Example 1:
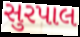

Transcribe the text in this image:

સુરપાલ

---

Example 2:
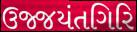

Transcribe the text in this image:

ઉજ્જયંતગિરિ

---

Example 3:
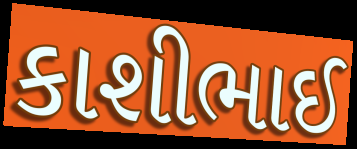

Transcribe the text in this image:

કાશીભાઈ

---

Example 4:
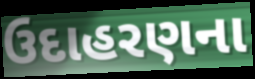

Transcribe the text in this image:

ઉદાહરણના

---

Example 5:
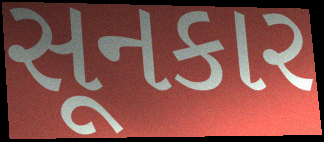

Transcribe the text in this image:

સૂનકાર